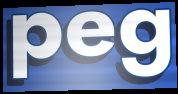
peg